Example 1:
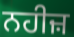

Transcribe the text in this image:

ਨਹੀਜ਼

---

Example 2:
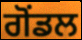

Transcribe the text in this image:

ਗੋਂਡਲ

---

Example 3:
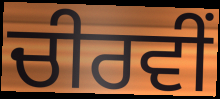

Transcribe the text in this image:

ਚੀਰਵੀਂ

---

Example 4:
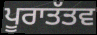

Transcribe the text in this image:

ਪੂਰਾਤੱਤਵ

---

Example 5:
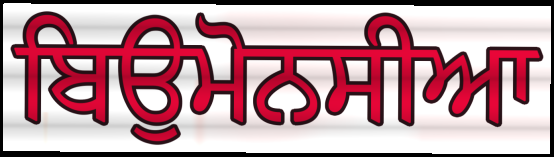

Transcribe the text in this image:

ਬਿਉਮੋਨਸੀਆ